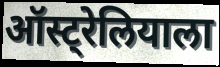
ऑस्ट्रेलियाला